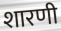
शारणी